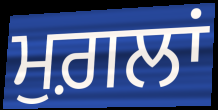
ਮੁਗ਼ਲਾਂ